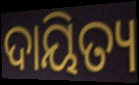
ଦାୟିତ୍ୟ